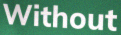
Without